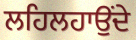
ਲਹਿਲਹਾਉਂਦੇ